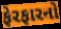
ફેરફારનો